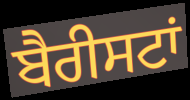
ਬੈਰੀਸਟਾਂ